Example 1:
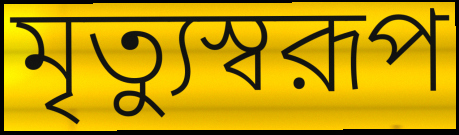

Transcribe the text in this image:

মৃত্যুস্বরূপ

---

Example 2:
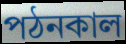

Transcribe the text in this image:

পঠনকাল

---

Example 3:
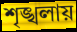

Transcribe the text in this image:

শৃঙ্খলায়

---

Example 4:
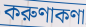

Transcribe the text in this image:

করুণাকণা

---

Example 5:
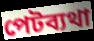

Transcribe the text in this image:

পেটব্যথা